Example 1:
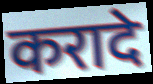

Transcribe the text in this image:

करादे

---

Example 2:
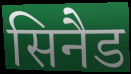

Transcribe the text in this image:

सिनैड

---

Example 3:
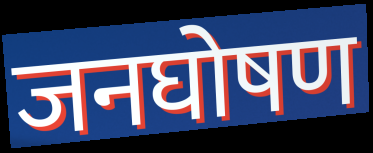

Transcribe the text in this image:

जनघोषण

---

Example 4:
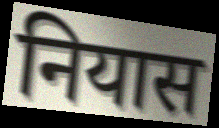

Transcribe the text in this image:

नियास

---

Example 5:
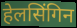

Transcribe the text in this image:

हेलसिंगिन